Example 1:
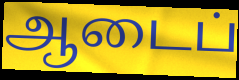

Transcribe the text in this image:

ஆடைப்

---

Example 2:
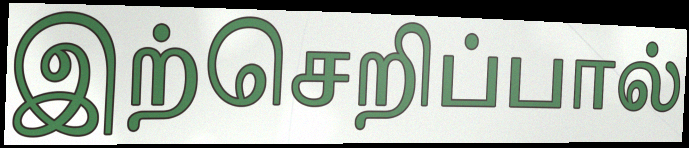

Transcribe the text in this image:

இற்செறிப்பால்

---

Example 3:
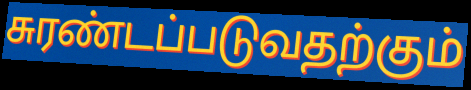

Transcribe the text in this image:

சுரண்டப்படுவதற்கும்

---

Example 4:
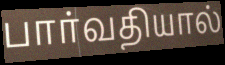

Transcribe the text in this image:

பார்வதியால்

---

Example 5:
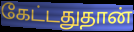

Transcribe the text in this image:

கேட்டதுதான்